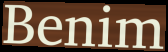
Benim